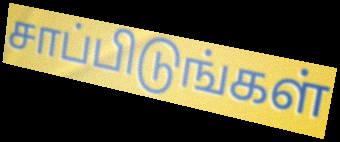
சாப்பிடுங்கள்